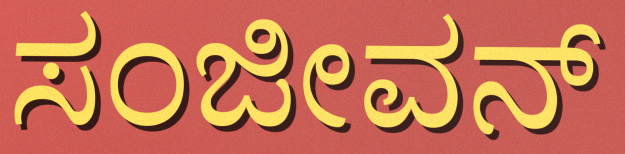
ಸಂಜೀವನ್